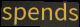
spends